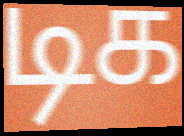
டிக